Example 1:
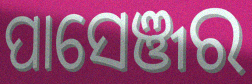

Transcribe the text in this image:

ପାସେଞ୍ଜର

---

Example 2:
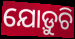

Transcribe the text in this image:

ଯୋଡ଼ୁଚି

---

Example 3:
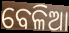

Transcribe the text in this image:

ବେଳିଆ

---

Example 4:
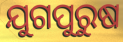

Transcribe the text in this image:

ଯୁଗପୁରୁଷ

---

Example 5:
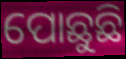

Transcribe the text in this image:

ପୋଛୁଛି